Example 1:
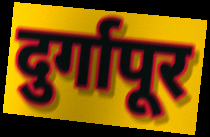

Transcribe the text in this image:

दुर्गापूर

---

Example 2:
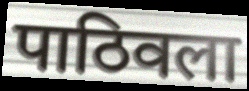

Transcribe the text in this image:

पाठिवला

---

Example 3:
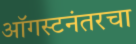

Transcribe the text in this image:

ऑगस्टनंतरचा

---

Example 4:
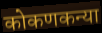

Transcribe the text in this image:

कोकणकन्या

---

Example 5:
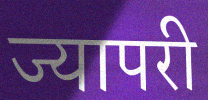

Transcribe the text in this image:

ज्यापरी